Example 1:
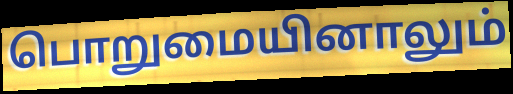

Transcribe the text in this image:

பொறுமையினாலும்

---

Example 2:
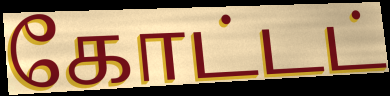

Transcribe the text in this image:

கோட்டட்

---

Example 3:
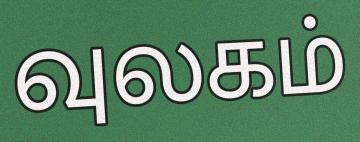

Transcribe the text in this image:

வுலகம்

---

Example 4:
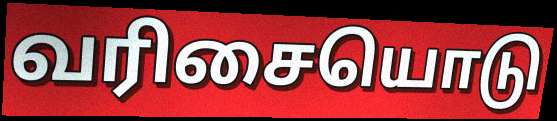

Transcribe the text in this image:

வரிசையொடு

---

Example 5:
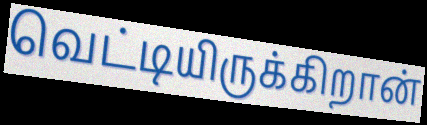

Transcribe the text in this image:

வெட்டியிருக்கிறான்